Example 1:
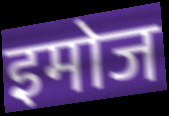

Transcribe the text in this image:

इमोज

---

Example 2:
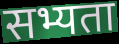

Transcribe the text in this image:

सभ्यता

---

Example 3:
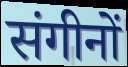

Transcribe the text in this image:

संगीनों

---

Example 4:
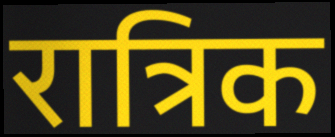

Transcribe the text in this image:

रात्रिक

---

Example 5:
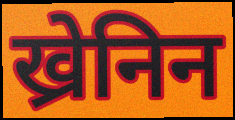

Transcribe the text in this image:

ख्रेनिन